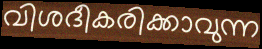
വിശദീകരിക്കാവുന്ന